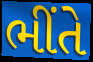
ભીંતે